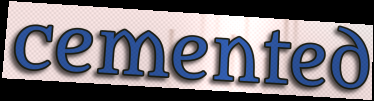
cemented